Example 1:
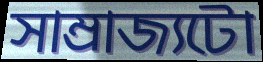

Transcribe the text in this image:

সাম্ৰাজ্যটো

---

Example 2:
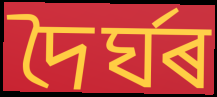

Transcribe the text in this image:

দৈৰ্ঘৰ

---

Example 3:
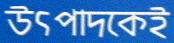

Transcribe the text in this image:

উৎপাদকেই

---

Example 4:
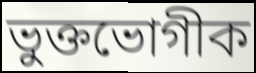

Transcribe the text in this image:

ভুক্তভোগীক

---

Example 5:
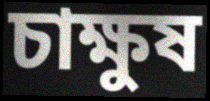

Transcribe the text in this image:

চাক্ষুষ